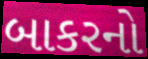
બાકરનો